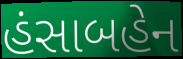
હંસાબહેન